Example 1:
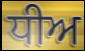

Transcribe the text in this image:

ਧੀਅ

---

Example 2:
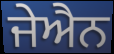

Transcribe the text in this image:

ਜੇਐਨ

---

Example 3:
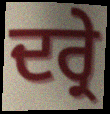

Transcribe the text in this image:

ਦਰ੍ਰੇ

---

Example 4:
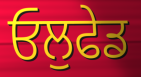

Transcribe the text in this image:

ਓਲੁਫੇਡ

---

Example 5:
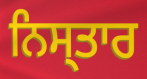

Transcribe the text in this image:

ਨਿਸ੍ਤਾਰ